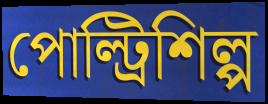
পোল্ট্রিশিল্প